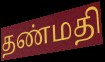
தண்மதி